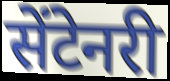
सेंटेनरी